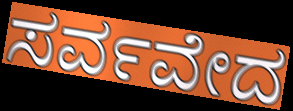
ಸರ್ವವೇದ